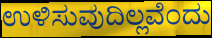
ಉಳಿಸುವುದಿಲ್ಲವೆಂದು